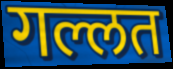
गल्लत